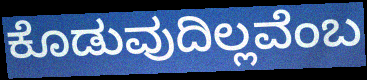
ಕೊಡುವುದಿಲ್ಲವೆಂಬ